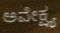
ಅವೇಕ್ಷ್ಯ